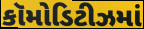
કૉમોડિટીઝમાં